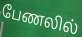
பேணலில்